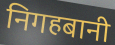
निगहबानी